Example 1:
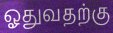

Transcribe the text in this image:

ஓதுவதற்கு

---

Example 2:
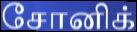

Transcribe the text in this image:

சோனிக்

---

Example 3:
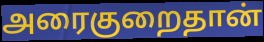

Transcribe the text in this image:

அரைகுறைதான்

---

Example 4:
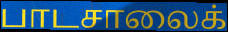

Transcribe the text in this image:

பாடசாலைக்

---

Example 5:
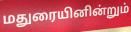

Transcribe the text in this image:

மதுரையினின்றும்